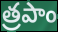
త్రపాం